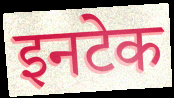
इनटेक